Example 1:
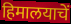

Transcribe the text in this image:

हिमालयाचें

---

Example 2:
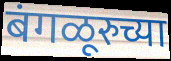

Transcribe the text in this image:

बंगळूरुच्या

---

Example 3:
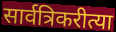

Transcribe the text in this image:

सार्वत्रिकरीत्या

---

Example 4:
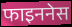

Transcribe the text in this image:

फाइननेस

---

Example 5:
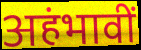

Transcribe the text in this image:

अहंभावीं